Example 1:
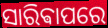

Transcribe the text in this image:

ସାରିଵାପରେ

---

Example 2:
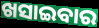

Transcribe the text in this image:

ଖସାଇବାର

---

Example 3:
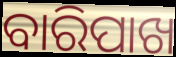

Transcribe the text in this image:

ବାରିପାଖ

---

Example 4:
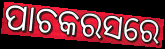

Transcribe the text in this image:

ପାଚକରସରେ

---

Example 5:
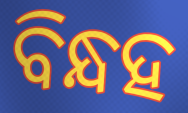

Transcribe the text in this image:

ବିନ୍ଧହ